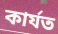
কার্যত